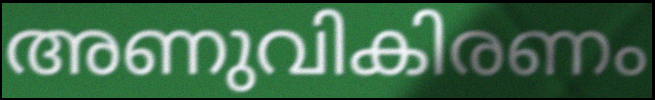
അണുവികിരണം